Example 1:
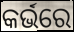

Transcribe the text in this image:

କର୍ଭରେ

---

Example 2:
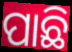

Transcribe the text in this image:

ପାଛି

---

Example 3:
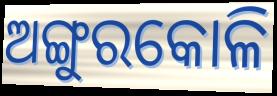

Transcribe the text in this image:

ଅଙ୍ଗୁରକୋଳି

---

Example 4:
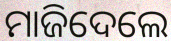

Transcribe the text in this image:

ମାଜିଦେଲେ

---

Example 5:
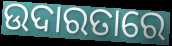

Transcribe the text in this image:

ଉଦାରତାରେ